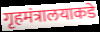
गृहमंत्रालयाकडे